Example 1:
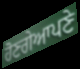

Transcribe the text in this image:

ਹੋਣਗੇਆਪਣੇ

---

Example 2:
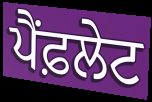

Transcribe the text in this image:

ਪੈਂਫ਼ਲੇਟ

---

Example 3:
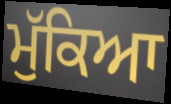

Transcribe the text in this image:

ਮੁੱਕਿਆ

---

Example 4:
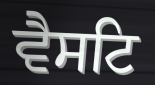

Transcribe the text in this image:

ਵੈਸਟਿ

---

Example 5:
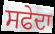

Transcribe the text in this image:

ਸਫੇਦਾ